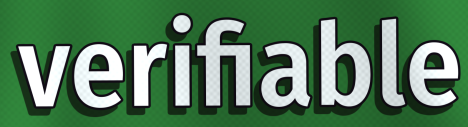
verifiable